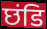
छंडि